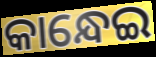
କାନ୍ଧେଇ